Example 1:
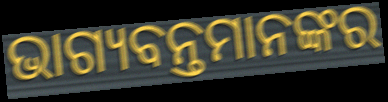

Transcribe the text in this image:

ଭାଗ୍ୟବନ୍ତମାନଙ୍କର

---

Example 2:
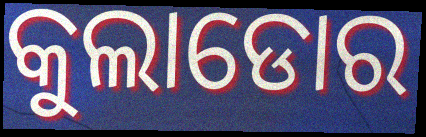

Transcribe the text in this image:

କୁଲାଡୋର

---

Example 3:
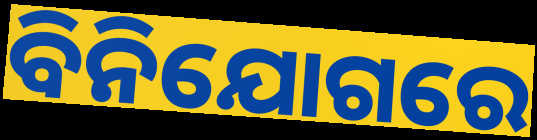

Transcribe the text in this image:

ବିନିଯୋଗରେ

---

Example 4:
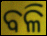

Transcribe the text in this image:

ବଳି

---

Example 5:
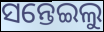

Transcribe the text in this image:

ସନ୍ତେଇଲୁ